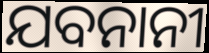
ଯବନାନୀ